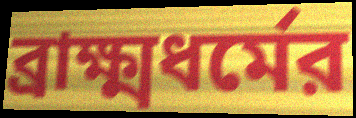
ব্রাক্ষ্মধর্মের